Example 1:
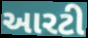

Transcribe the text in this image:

આરટી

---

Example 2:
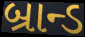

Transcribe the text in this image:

બ્રાન્ડ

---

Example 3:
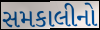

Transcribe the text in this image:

સમકાલીનો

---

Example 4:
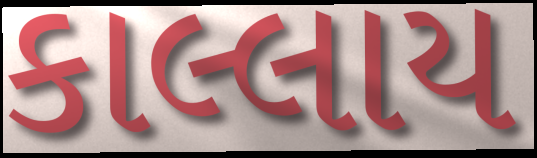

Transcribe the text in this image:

કાલ્લાય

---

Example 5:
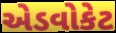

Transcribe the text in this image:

એડવોકેટ